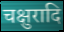
चक्षुरादि